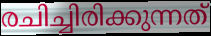
രചിച്ചിരിക്കുന്നത്